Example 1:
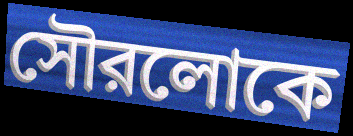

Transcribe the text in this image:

সৌরলোকে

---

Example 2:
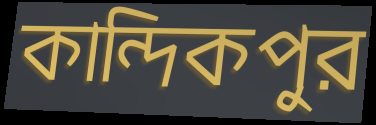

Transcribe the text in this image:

কান্দিকপুর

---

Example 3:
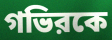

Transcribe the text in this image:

গভিরকে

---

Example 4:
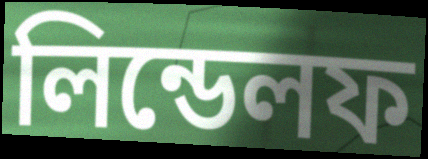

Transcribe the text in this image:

লিন্ডেলফ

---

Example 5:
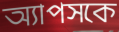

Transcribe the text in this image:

অ্যাপসকে